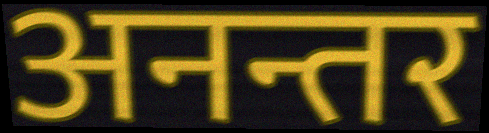
अनन्तर